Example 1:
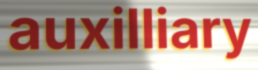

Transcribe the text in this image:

auxilliary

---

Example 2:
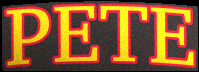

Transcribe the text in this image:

PETE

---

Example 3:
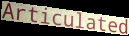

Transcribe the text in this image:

Articulated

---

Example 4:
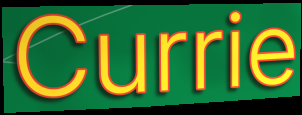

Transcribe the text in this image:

Currie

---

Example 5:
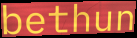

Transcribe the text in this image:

bethun